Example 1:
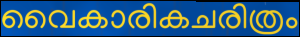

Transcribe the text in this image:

വൈകാരികചരിത്രം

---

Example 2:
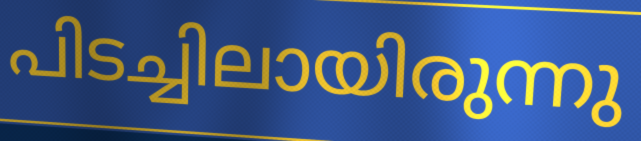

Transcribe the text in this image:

പിടച്ചിലായിരുന്നു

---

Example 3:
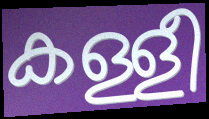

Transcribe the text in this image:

കള്ളീ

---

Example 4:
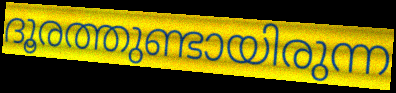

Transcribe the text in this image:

ദൂരത്തുണ്ടായിരുന്ന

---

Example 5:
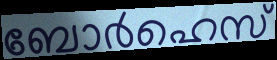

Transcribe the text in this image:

ബോർഹെസ്